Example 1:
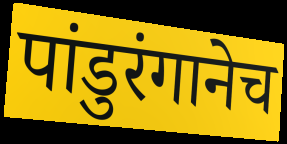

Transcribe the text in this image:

पांडुरंगानेच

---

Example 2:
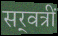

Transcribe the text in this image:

सर्वत्रीं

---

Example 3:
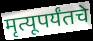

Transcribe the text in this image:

मृत्यूपर्यंतचे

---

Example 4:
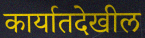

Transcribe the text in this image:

कार्यातदेखील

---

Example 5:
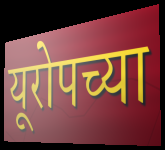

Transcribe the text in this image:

यूरोपच्या